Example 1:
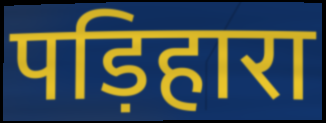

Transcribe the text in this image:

पड़िहारा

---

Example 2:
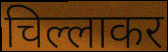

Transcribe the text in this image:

चिल्लाकर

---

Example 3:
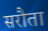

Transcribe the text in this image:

सरौता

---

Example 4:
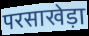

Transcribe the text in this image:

परसाखेड़ा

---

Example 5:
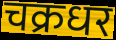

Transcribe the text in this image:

चक्रधर